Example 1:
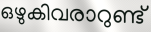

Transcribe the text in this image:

ഒഴുകിവരാറുണ്ട്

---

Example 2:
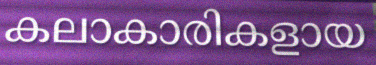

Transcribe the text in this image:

കലാകാരികളായ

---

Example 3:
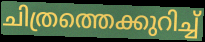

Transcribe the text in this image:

ചിത്രത്തെക്കുറിച്ച്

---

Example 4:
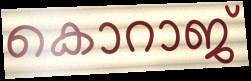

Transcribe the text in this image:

കൊറാജ്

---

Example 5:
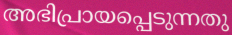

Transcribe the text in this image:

അഭിപ്രായപ്പെടുന്നതു